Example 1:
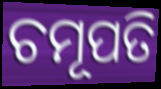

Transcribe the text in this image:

ଚମୂପତି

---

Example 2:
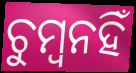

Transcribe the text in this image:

ଚୁମ୍ବନହିଁ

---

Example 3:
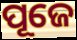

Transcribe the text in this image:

ପୂଜେ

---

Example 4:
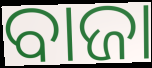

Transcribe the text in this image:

ବାଜା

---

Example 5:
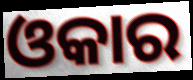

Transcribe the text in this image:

ଓକାର